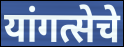
यांगत्सेचे